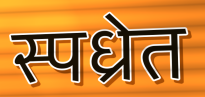
स्पध्रेत